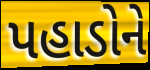
પહાડોને